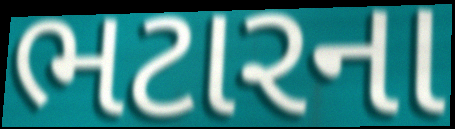
ભટારના